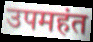
उपमहंत